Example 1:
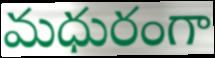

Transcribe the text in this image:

మధురంగా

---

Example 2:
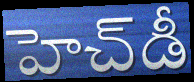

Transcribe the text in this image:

హెచ్‌డీ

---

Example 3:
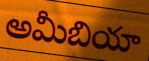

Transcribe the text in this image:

అమీబియా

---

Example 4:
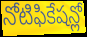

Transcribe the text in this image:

నోటిఫికేషన్లో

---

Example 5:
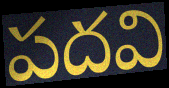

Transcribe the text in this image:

పదవి